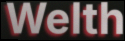
Welth